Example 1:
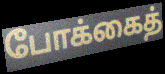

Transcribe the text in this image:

போக்கைத்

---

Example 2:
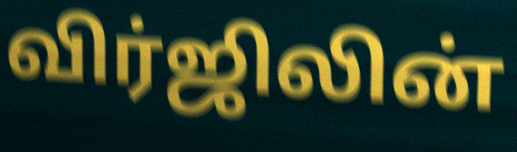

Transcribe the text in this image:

விர்ஜிலின்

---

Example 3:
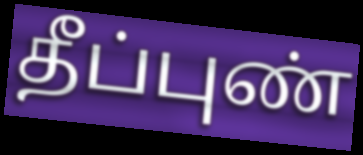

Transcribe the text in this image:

தீப்புண்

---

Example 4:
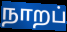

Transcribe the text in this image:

நாறப்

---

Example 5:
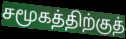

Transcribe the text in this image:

சமூகத்திற்குத்